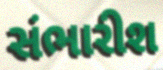
સંભારીશ